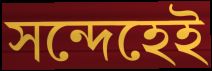
সন্দেহেই